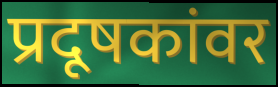
प्रदूषकांवर